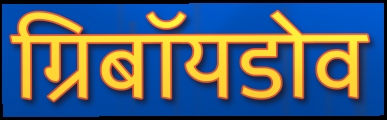
ग्रिबॉयडोव